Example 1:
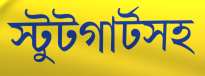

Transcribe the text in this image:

স্টুটগার্টসহ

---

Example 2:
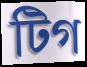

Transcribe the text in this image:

টিগ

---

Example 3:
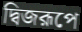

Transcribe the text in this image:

দ্বিজরূপে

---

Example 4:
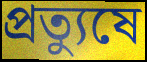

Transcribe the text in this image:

প্রত্যুষে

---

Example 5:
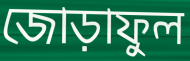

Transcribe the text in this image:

জোড়াফুল